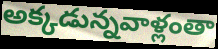
అక్కడున్నవాళ్లంతా